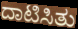
ದಾಟಿಸಿತು